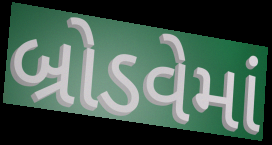
બ્રોડવેમાં